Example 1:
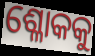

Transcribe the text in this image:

ଶ୍ଳୋକକୁ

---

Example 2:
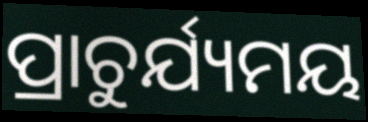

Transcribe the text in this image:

ପ୍ରାଚୁର୍ଯ୍ୟମୟ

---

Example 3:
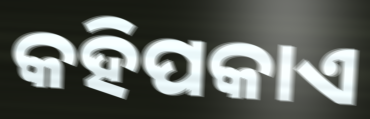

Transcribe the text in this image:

କହିପକାଏ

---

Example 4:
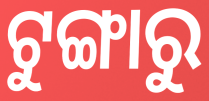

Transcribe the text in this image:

ଟୁଙ୍ଗାରୁ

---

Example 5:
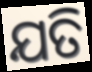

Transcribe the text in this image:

ଯତି